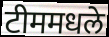
टीममधले